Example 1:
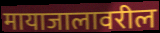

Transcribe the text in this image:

मायाजालावरील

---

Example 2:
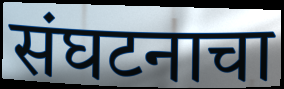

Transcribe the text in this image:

संघटनाचा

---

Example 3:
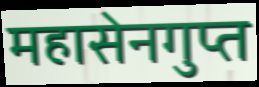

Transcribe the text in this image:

महासेनगुप्त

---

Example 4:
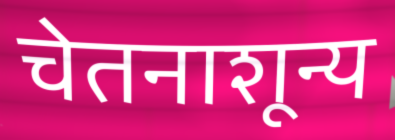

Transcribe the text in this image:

चेतनाशून्य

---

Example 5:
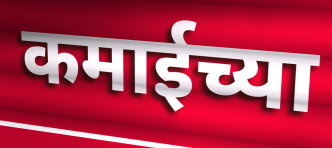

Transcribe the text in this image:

कमाईच्या